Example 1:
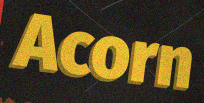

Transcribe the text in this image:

Acorn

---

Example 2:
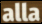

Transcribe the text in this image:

alla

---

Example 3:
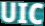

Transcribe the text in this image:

UIC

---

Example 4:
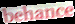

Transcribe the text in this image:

behance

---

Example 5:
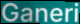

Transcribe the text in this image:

Ganeri